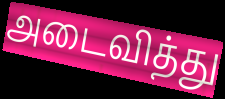
அடைவித்து